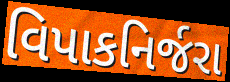
વિપાકનિર્જરા